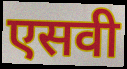
एसवी